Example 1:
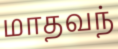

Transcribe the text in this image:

மாதவந்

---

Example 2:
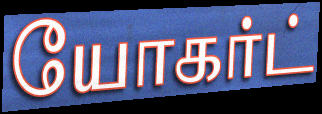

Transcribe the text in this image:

யோகர்ட்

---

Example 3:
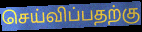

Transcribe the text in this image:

செய்விப்பதற்கு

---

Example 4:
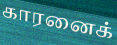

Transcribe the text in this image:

காரனைக்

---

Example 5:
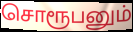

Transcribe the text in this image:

சொரூபனும்